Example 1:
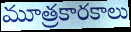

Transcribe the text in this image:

మూత్రకారకాలు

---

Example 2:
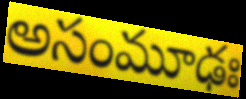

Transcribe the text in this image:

అసంమూఢః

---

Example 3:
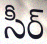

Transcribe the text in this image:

సీర్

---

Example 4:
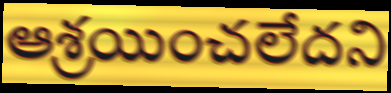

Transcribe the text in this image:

ఆశ్రయించలేదని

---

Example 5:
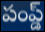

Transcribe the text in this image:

పంప్డ్